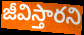
జీవిస్తారని